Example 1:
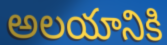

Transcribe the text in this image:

అలయానికి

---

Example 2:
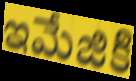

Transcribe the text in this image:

ఇమేజికి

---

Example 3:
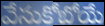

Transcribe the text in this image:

వేసుకోబోయే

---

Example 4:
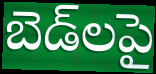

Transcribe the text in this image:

బెడ్‌లపై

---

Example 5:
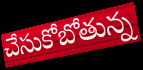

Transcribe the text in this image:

చేసుకోబోతున్న